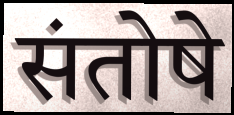
संतोषे